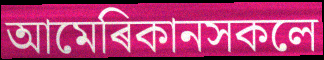
আমেৰিকানসকলে